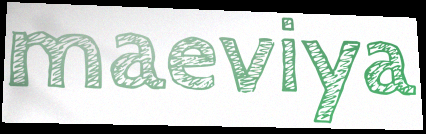
maeviya